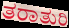
ತರಾತುರಿ